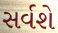
સર્વશે